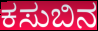
ಕಸುಬಿನ